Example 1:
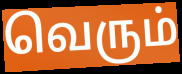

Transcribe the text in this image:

வெரும்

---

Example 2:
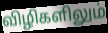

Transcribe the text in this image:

விழிகளிலும்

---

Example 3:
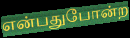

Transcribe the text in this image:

என்பதுபோன்ற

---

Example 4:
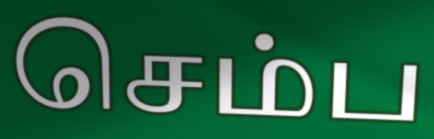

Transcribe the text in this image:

செம்ப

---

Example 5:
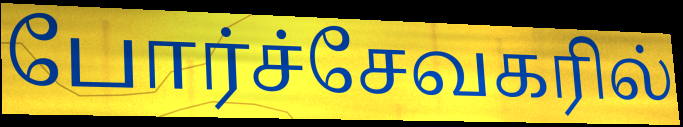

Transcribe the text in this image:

போர்ச்சேவகரில்